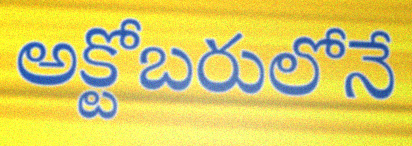
అక్టోబరులోనే